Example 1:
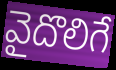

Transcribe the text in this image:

వైదొలిగే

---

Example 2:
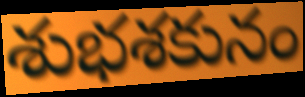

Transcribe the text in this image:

శుభశకునం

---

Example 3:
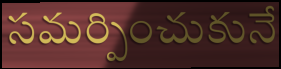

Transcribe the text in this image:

సమర్పించుకునే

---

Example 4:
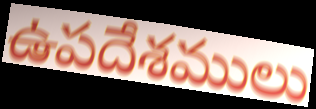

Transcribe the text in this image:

ఉపదేశములు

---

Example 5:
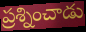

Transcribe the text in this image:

ప్రశ్నించాడు